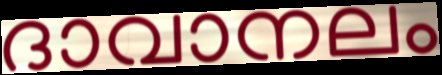
ദാവാനലം